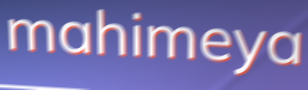
mahimeya